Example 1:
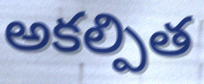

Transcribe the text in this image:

అకల్పిత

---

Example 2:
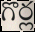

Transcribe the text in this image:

గొర్ల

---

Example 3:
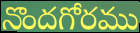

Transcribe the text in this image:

నొందగోరము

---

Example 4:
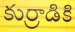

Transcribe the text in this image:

కుర్రాడికి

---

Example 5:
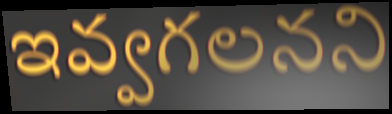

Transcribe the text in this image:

ఇవ్వగలనని